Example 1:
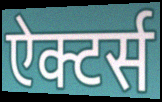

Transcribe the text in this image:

ऐक्टर्स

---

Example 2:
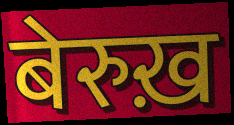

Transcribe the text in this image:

बेरुख़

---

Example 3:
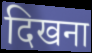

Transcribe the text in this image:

दिखना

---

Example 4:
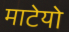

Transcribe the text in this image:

माटेयो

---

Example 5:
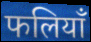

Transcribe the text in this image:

फलियाँ